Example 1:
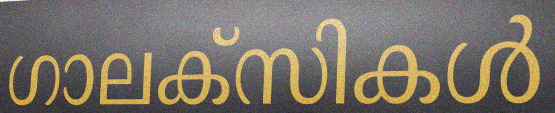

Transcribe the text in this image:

ഗാലക്സികൾ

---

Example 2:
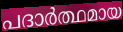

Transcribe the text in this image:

പദാർത്ഥമായ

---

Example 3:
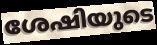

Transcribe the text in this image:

ശേഷിയുടെ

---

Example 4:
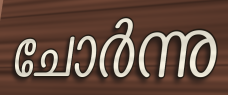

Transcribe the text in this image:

ചോർന്നു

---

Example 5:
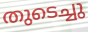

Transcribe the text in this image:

തുടെച്ചു